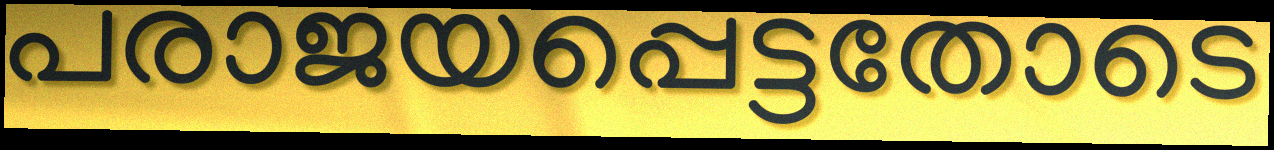
പരാജയപ്പെട്ടതോടെ